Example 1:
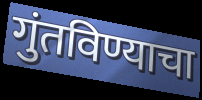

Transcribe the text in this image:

गुंतविण्याचा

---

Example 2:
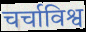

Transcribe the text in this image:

चर्चाविश्व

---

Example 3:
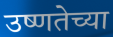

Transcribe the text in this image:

उष्णतेच्या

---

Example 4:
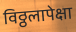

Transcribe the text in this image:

विठ्ठलापेक्षा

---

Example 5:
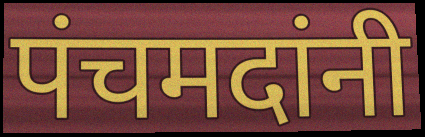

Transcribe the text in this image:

पंचमदांनी